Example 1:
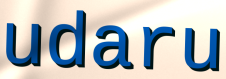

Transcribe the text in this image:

udaru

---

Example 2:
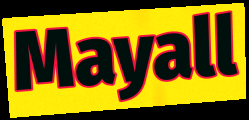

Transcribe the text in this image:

Mayall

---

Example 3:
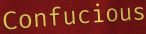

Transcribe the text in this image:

Confucious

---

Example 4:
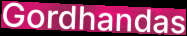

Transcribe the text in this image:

Gordhandas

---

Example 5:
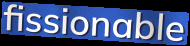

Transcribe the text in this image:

fissionable